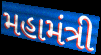
મહામંત્રી